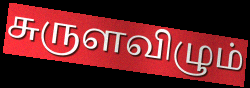
சுருளவிழும்